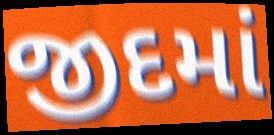
જીદમાં